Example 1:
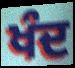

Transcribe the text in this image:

ਖੰਦ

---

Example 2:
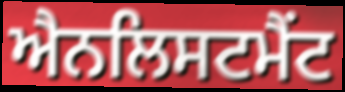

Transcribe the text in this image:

ਐਨਲਿਸਟਮੈਂਟ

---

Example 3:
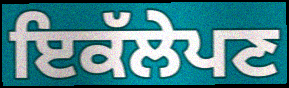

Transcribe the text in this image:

ਇਕੱਲੇਪਣ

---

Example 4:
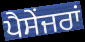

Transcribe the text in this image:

ਪੈਸੇਂਜਰਾਂ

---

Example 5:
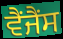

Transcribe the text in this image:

ਵੈਂਜੈਂਸ